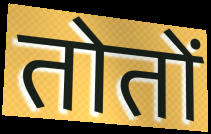
तोतों